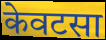
केवटसा